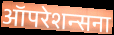
ऑपरेशन्सना